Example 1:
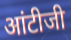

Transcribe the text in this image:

आंटीजी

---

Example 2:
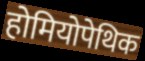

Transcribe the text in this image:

होमियोपेथिक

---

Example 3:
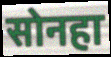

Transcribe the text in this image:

सोनहा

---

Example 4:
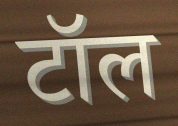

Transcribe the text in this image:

टॉल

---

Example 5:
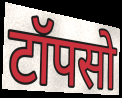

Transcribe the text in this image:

टॉपसो